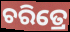
ଚରିତ୍ରେ